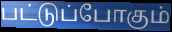
பட்டுப்போகும்